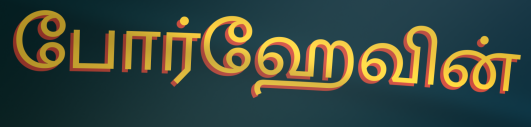
போர்ஹேவின்